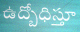
ఉద్బోధిస్తూ